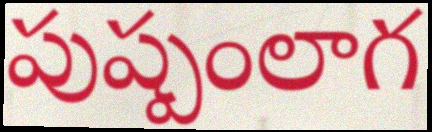
పుష్పంలాగ